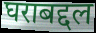
घराबद्दल